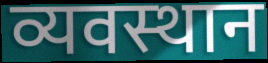
व्यवस्थान